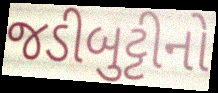
જડીબુટ્ટીનો